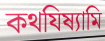
কথযিষ্যামি